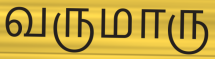
வருமாரு